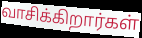
வாசிக்கிறார்கள்